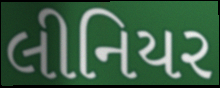
લીનિયર